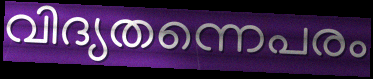
വിദ്യതന്നെപരം